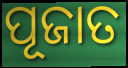
ପୂଜାତ